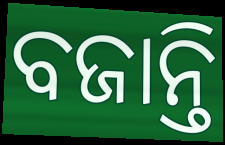
ବଜାନ୍ତି